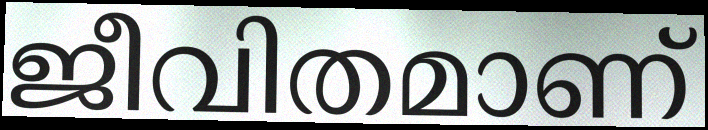
ജീവിതമാണ്